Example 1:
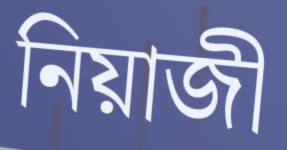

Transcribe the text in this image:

নিয়াজী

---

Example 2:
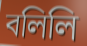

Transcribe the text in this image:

বলিলি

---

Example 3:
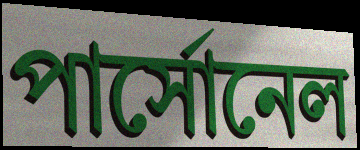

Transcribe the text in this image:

পার্সোনেল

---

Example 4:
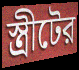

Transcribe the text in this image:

স্ত্রীটের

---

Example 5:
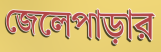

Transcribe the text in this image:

জেলেপাড়ার